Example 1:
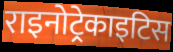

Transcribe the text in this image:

राइनोट्रेकाइटिस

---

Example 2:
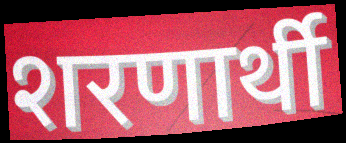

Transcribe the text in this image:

शरणार्थी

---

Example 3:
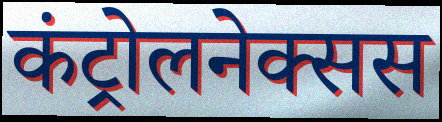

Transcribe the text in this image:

कंट्रोलनेक्सस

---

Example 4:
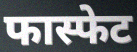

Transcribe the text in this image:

फास्फेट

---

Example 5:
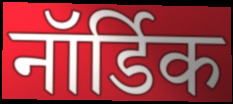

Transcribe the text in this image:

नॉर्डिक